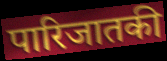
पारिजातकी